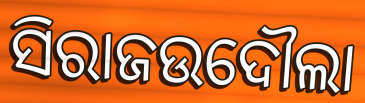
ସିରାଜଉଦୌଲା